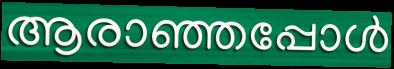
ആരാഞ്ഞപ്പോൾ